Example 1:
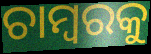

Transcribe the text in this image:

ଚାମ୍ବରକୁ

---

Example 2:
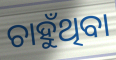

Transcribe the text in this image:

ଚାହୁଁଥିବା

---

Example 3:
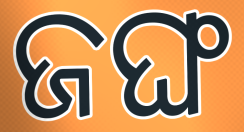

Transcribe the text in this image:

ଜଙ୍ଘ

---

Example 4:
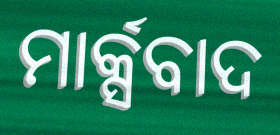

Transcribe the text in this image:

ମାର୍କ୍ସବାଦ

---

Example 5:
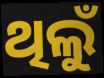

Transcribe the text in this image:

ଥିଲୁଁ